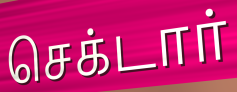
செக்டார்